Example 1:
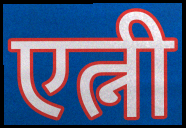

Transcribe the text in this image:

एत्नी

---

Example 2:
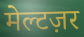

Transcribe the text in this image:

मेल्टज़र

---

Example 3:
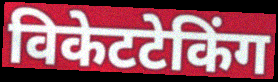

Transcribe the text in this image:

विकेटटेकिंग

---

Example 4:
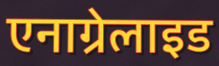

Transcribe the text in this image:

एनाग्रेलाइड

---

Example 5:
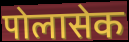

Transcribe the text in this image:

पोलासेक